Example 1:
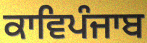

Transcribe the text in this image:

ਕਾਵਿਪੰਜਾਬ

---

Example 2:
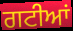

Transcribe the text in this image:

ਗਟੀਆਂ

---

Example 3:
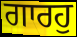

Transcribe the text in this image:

ਗਾਰਹੁ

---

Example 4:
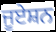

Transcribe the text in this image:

ਜੂਏਸ਼ਨ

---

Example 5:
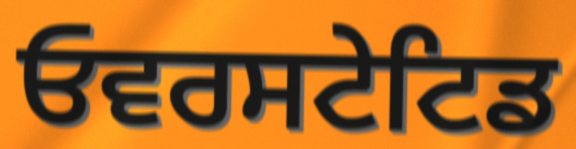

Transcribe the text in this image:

ਓਵਰਸਟੇਟਿਡ